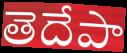
తెదేపా